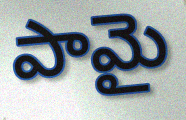
పామై